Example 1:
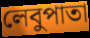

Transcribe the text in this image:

লেবুপাতা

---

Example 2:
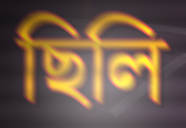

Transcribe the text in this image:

ছিলি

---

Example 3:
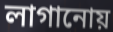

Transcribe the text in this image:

লাগানোয়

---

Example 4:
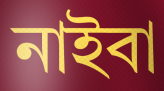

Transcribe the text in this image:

নাইবা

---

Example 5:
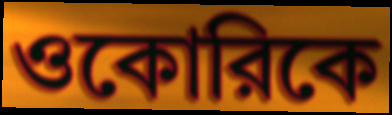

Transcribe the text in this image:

ওকোরিকে